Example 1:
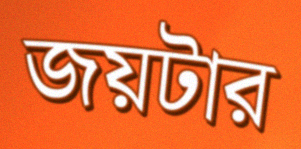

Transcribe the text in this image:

জয়টার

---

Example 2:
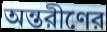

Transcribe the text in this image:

অন্তরীণের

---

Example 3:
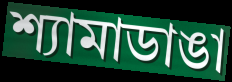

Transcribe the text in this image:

শ্যামাডাঙা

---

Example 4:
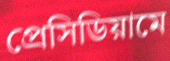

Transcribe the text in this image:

প্রেসিডিয়ামে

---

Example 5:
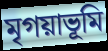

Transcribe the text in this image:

মৃগয়াভূমি